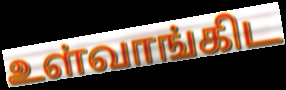
உள்வாங்கிட